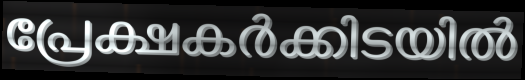
പ്രേക്ഷകർക്കിടയിൽ